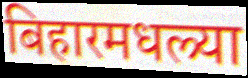
बिहारमधल्या